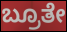
ಬ್ರೂತೇ